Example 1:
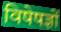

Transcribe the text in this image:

विषेषज्ञों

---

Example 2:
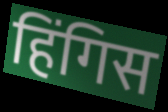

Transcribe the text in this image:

हिंगिस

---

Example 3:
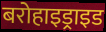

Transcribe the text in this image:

बरोहाइड्राइड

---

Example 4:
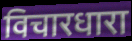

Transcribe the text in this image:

विचारधारा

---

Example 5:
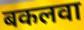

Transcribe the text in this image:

बकलवा